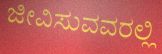
ಜೀವಿಸುವವರಲ್ಲಿ